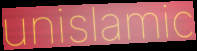
unislamic